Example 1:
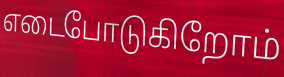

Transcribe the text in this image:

எடைபோடுகிறோம்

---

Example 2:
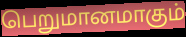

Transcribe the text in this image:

பெறுமானமாகும்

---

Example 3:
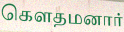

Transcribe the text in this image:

கெளதமனார்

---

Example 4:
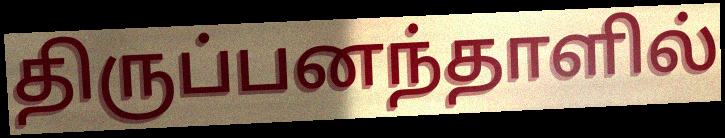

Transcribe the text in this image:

திருப்பனந்தாளில்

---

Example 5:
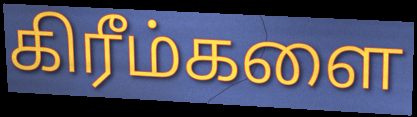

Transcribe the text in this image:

கிரீம்களை